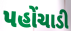
પહોંચાડી